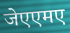
जेएएमए